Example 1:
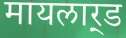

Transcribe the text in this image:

मायलार्ड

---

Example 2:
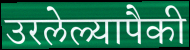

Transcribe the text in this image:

उरलेल्यापैकी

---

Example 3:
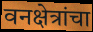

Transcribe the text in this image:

वनक्षेत्रांचा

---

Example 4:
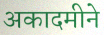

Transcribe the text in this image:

अकादमीने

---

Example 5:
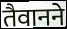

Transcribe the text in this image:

तैवानने